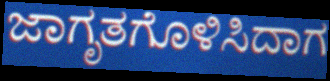
ಜಾಗೃತಗೊಳಿಸಿದಾಗ